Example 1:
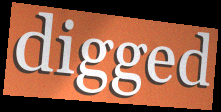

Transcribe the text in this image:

digged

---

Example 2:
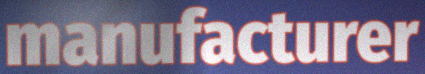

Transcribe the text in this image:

manufacturer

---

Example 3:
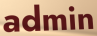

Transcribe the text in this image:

admin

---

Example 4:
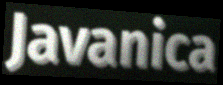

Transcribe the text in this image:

Javanica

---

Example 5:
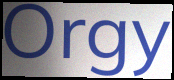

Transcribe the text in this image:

Orgy